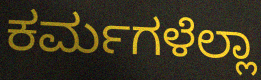
ಕರ್ಮಗಳೆಲ್ಲಾ